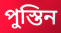
পুস্তিন